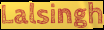
Lalsingh